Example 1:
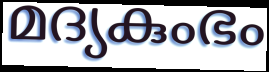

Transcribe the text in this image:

മദ്യകുംഭം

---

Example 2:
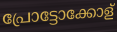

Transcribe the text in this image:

പ്രോട്ടോക്കോള്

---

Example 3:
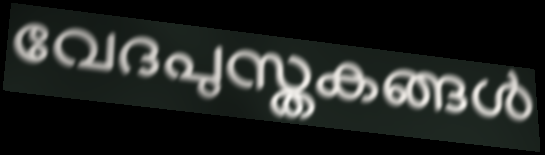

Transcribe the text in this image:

വേദപുസ്തകങ്ങൾ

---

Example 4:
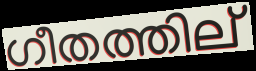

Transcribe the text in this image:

ഗീതത്തില്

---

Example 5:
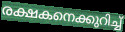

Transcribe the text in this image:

രക്ഷകനെക്കുറിച്ച്